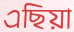
এছিয়া